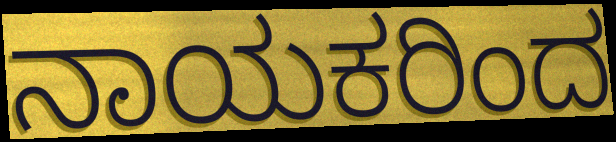
ನಾಯಕರಿಂದ